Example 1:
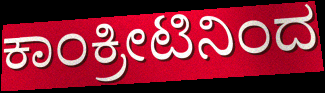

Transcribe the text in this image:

ಕಾಂಕ್ರೀಟಿನಿಂದ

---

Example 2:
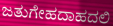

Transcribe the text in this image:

ಜತುಗೇಹದಾಹದಲಿ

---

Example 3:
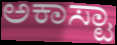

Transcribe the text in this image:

ಅಕಾಸ್ಟಾ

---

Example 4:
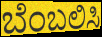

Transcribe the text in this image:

ಬೆಂಬಲಿಸಿ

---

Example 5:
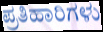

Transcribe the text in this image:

ಪ್ರತಿಹಾರಿಗಳು